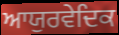
ਆਯੁਰਵੇਦਿਕ